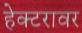
हेक्टरावर